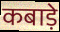
कबाड़े